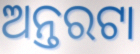
ଅନ୍ତରଟା